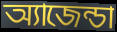
অ্যাজেন্ডা